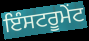
ਇੰਸਟਰੂਮੇਂਟ